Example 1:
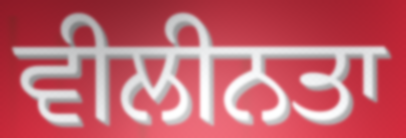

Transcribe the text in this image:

ਵੀਲੀਨਤਾ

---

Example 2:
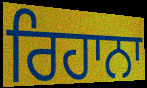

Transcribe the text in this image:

ਰਿਹਾਨਾ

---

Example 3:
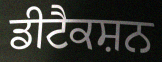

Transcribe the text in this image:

ਡੀਟੈਕਸ਼ਨ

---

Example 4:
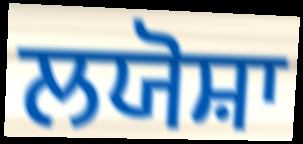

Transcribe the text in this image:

ਲਯੋਸ਼ਾ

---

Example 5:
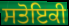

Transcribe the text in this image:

ਸਤੋਇਕੀ